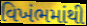
વિખંભમાંથી